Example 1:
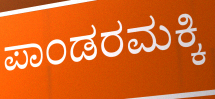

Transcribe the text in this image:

ಪಾಂಡರಮಕ್ಕಿ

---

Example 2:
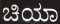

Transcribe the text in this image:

ಚಿಯಾ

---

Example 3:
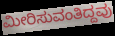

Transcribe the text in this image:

ಮೀರಿಸುವಂತಿದ್ದವು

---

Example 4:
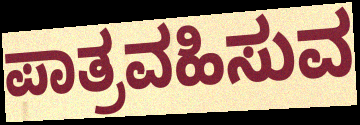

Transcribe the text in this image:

ಪಾತ್ರವಹಿಸುವ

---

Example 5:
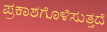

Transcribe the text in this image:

ಪ್ರಕಾಶಗೊಳಿಸುತ್ತದೆ